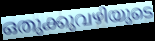
ഒതുക്കുവഴിയുടെ